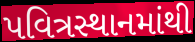
પવિત્રસ્થાનમાંથી